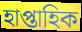
হাপ্তাহিক